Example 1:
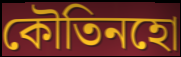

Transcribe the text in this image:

কৌতিনহো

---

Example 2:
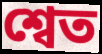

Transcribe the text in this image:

শ্বেত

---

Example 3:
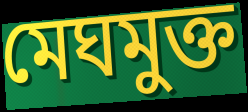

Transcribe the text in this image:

মেঘমুক্ত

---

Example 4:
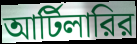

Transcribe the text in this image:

আর্টিলারির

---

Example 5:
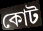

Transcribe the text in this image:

কোট